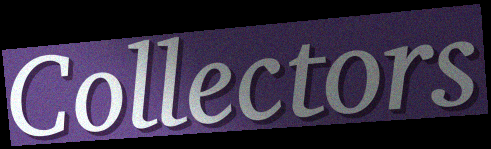
Collectors